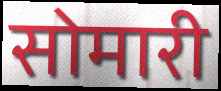
सोमारी